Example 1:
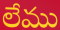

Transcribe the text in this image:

లేము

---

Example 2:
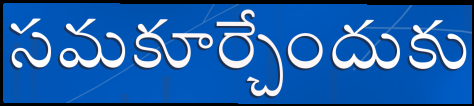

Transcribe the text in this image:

సమకూర్చేందుకు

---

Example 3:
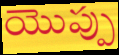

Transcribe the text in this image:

యొప్పు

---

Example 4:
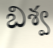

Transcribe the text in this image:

బిశ్వ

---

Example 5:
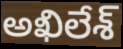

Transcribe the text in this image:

అఖిలేశ్